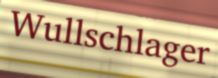
Wullschlager